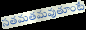
సతమతమవుతూంటే